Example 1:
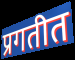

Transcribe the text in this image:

प्रगतीत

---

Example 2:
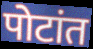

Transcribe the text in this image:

पोटांत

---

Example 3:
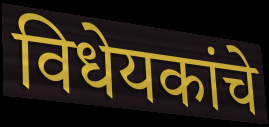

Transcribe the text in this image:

विधेयकांचे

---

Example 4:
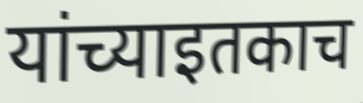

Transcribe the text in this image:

यांच्याइतकाच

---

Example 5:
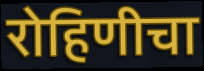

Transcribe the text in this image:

रोहिणीचा